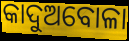
କାଦୁଅବୋଳା